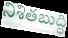
నిశితబుద్ధి